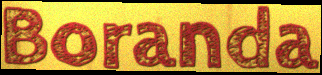
Boranda